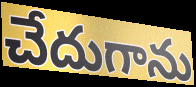
చేదుగాను